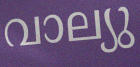
വാല്യു